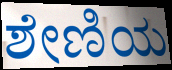
ಶೇಣಿಯ